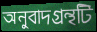
অনুবাদগ্রন্থটি